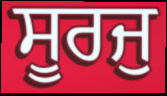
ਸੂਰਜੁ